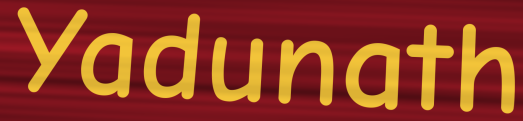
Yadunath